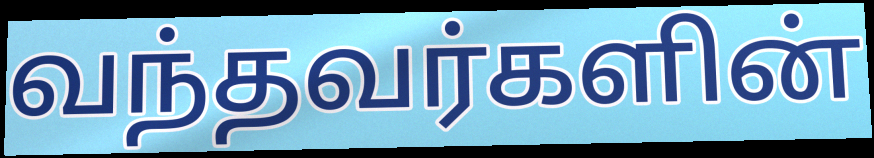
வந்தவர்களின்